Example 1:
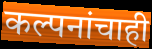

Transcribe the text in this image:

कल्पनांचाही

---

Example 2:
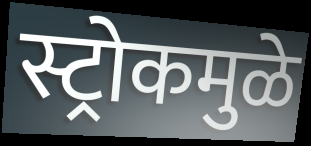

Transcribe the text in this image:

स्ट्रोकमुळे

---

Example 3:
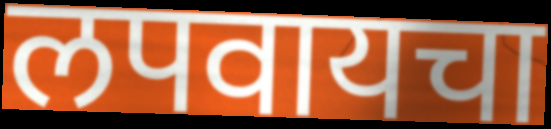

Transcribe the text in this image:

लपवायचा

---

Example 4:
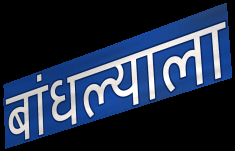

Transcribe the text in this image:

बांधल्याला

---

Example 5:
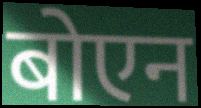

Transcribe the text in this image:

बोएन